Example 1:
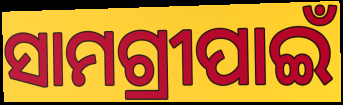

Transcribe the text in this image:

ସାମଗ୍ରୀପାଇଁ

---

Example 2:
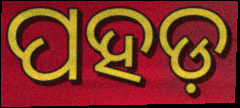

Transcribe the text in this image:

ପହଡ଼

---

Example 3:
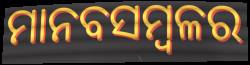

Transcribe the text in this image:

ମାନବସମ୍ବଳର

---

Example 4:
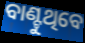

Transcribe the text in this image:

ବାଣ୍ଟୁଥିବେ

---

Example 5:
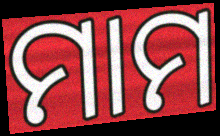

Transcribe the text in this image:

ମାମ